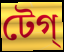
টেগ্